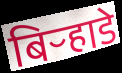
बिऱ्हाडे